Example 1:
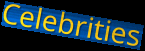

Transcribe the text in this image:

Celebrities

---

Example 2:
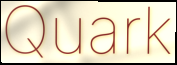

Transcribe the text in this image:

Quark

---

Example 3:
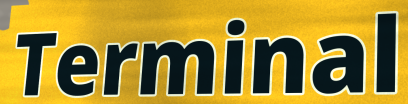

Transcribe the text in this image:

Terminal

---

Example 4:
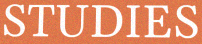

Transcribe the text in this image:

STUDIES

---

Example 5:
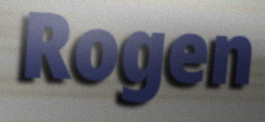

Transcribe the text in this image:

Rogen